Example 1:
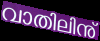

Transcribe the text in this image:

വാതിലിനു്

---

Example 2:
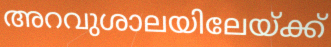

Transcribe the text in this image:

അറവുശാലയിലേയ്ക്ക്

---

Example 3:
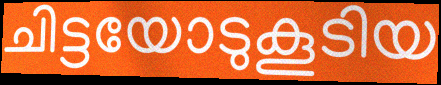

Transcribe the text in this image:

ചിട്ടയോടുകൂടിയ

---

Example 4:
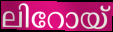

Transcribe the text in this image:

ലിറോയ്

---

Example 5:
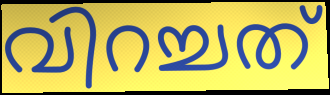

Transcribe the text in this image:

വിറച്ചത്